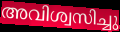
അവിശ്വസിച്ചു